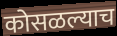
कोसळल्याच